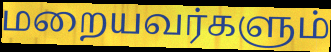
மறையவர்களும்